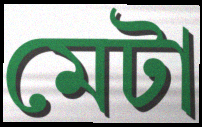
মেটা